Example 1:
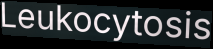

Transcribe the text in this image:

Leukocytosis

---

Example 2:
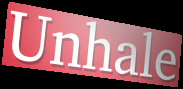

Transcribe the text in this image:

Unhale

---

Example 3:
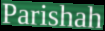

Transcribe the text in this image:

Parishah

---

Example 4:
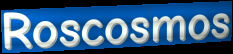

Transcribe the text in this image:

Roscosmos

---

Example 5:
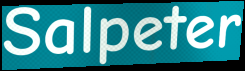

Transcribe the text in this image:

Salpeter